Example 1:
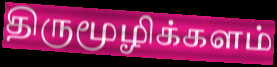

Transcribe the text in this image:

திருமூழிக்களம்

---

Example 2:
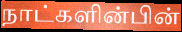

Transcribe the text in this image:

நாட்களின்பின்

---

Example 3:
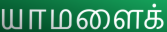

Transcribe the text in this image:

யாமளைக்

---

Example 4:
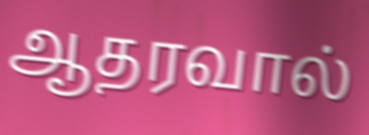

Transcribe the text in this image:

ஆதரவால்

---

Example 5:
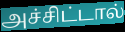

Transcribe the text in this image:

அச்சிட்டால்